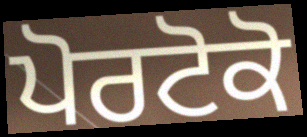
ਪੋਰਟੋਕੋ